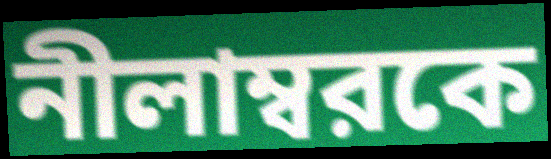
নীলাম্বরকে